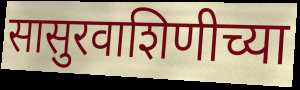
सासुरवाशिणीच्या